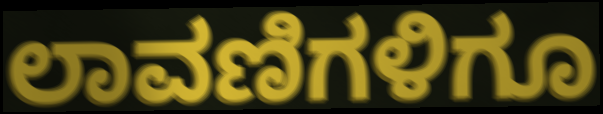
ಲಾವಣಿಗಳಿಗೂ